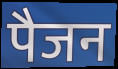
पैजन